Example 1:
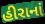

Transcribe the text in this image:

હીરાનાં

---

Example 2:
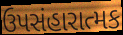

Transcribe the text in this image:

ઉપસંહારાત્મક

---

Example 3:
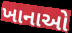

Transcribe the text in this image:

ખાનાઓ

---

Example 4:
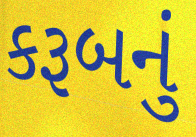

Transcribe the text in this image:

કરૂબનું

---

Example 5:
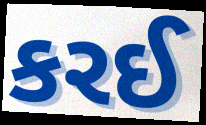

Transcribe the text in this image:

કરઈ